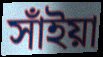
সাঁইয়া